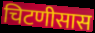
चिटणीसास